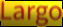
Largo